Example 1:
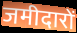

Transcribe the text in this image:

जमीदारों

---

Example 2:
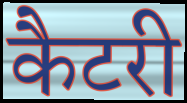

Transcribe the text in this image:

कैटरी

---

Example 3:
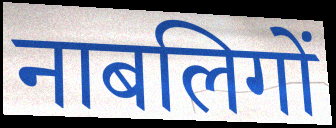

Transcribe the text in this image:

नाबलिगों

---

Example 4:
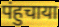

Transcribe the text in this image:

पंहुचाया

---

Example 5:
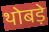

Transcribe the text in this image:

थोबड़े